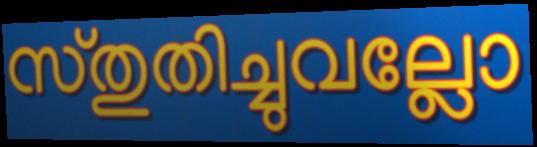
സ്തുതിച്ചുവല്ലോ